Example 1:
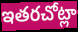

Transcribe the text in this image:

ఇతరచోట్లా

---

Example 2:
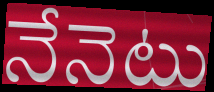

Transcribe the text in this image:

నేనెటు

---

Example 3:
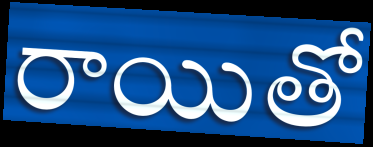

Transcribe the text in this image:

రాయితో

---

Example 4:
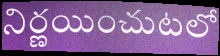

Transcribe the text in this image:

నిర్ణయించుటలో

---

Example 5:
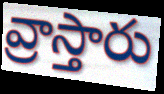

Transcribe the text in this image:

వ్రాస్తారు